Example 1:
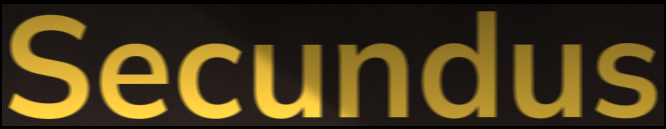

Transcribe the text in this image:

Secundus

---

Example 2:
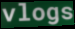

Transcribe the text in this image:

vlogs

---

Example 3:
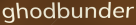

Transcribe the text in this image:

ghodbunder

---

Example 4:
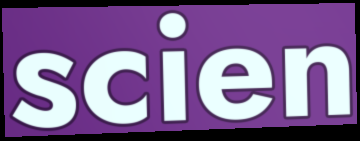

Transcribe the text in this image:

scien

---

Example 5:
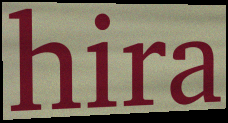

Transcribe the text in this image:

hira